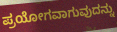
ಪ್ರಯೋಗವಾಗುವುದನ್ನು